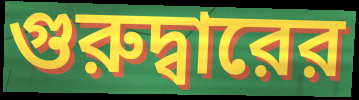
গুরুদ্বারের